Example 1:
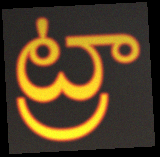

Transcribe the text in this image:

ట్రా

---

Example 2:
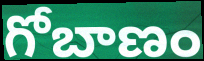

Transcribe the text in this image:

గోబాణం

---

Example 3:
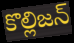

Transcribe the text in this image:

కొల్లిజన్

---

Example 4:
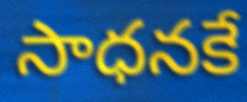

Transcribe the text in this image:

సాధనకే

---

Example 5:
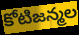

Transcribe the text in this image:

కోటిజన్మల